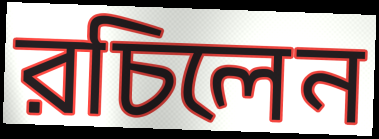
রচিলেন